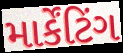
માર્કેંટિંગ